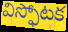
విస్ఫోటక